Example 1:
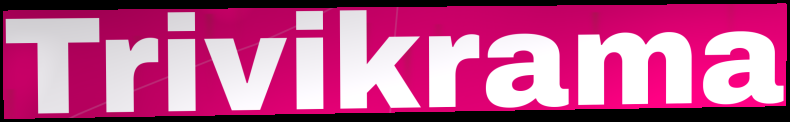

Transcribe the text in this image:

Trivikrama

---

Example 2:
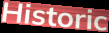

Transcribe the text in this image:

Historic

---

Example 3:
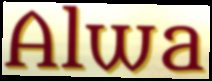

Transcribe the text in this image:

Alwa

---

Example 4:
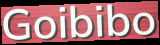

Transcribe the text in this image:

Goibibo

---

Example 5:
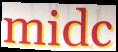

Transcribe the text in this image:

midc